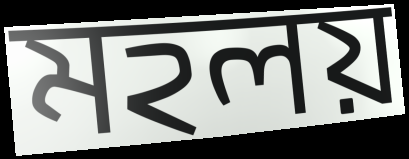
মহলয়